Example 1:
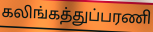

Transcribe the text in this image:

கலிங்கத்துப்பரணி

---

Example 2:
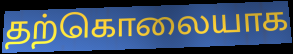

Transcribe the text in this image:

தற்கொலையாக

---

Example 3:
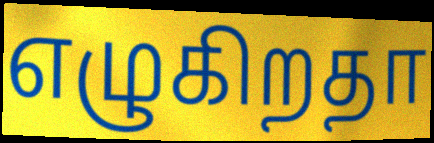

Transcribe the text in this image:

எழுகிறதா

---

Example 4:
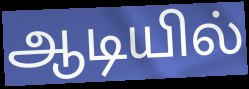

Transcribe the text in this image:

ஆடியில்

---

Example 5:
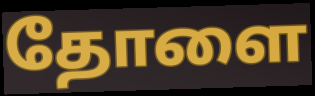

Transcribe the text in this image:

தோளை